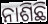
ନାଶିଛି